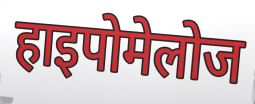
हाइपोमेलोज